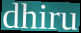
dhiru